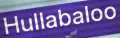
Hullabaloo